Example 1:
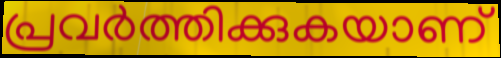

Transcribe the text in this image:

പ്രവർത്തിക്കുകയാണ്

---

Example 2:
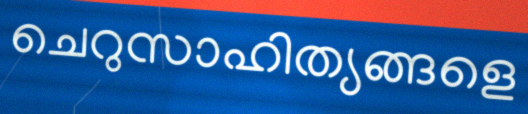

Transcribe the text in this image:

ചെറുസാഹിത്യങ്ങളെ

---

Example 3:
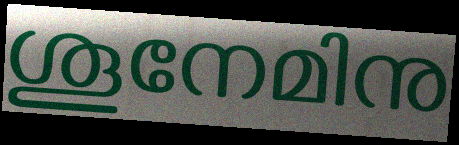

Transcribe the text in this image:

ശൂനേമിനു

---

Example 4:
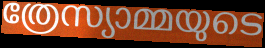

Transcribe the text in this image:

ത്രേസ്യാമ്മയുടെ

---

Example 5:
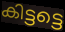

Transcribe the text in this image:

കിട്ടട്ടെ